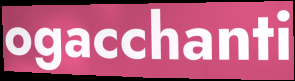
ogacchanti